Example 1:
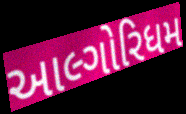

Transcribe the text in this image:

આલ્ગોરિધમ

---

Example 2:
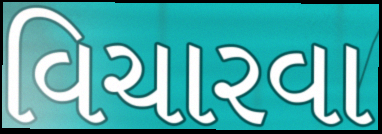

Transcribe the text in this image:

વિચારવા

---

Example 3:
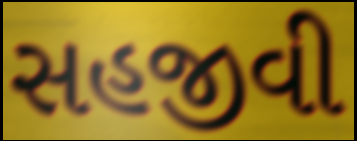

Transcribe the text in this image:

સહજીવી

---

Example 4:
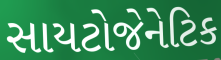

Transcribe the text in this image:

સાયટોજેનેટિક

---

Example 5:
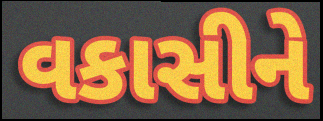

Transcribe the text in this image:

વકાસીને